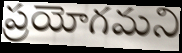
ప్రయోగమని